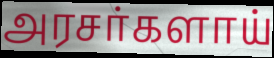
அரசர்களாய்